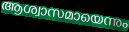
ആശ്വാസമായെന്നും